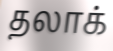
தலாக்